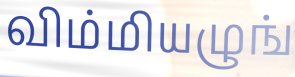
விம்மியழுங்